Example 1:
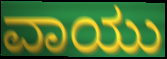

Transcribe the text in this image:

ವಾಯು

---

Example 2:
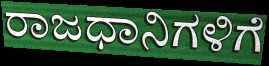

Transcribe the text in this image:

ರಾಜಧಾನಿಗಳಿಗೆ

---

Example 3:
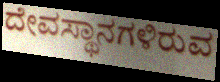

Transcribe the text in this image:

ದೇವಸ್ಥಾನಗಳಿರುವ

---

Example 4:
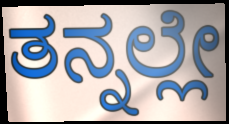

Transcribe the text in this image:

ತನ್ನಲ್ಲೇ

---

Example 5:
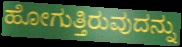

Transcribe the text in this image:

ಹೋಗುತ್ತಿರುವುದನ್ನು